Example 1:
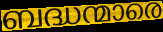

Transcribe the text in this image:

ബദ്ധന്മാരെ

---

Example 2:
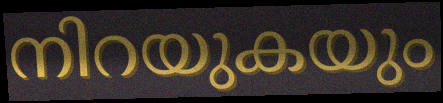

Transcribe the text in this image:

നിറയുകയും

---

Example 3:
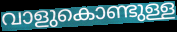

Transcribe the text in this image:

വാളുകൊണ്ടുള്ള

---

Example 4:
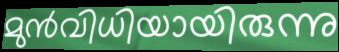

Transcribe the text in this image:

മുൻവിധിയായിരുന്നു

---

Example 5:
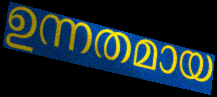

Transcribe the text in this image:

ഉന്നതമായ